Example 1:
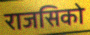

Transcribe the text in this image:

राजसिको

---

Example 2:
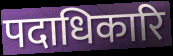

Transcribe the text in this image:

पदाधिकारि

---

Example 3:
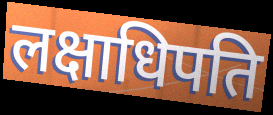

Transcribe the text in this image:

लक्षाधिपति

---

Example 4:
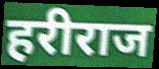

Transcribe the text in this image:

हरीराज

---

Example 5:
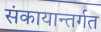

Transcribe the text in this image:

संकायान्तर्गत